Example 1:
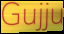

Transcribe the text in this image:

Gujju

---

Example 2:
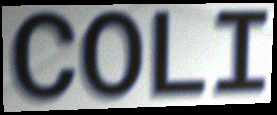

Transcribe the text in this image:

COLI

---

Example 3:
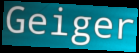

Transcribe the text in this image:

Geiger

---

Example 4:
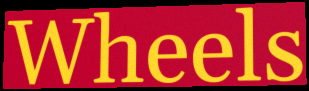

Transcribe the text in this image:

Wheels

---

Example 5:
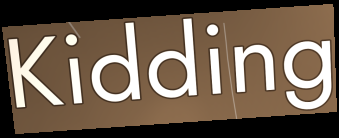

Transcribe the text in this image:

Kidding